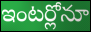
ఇంటర్లోనూ